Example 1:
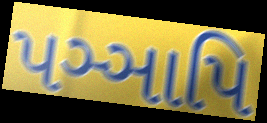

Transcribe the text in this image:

પઞ્ઞાપિ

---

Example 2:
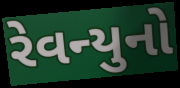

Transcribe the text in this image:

રેવન્યુનો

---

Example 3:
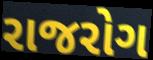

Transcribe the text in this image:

રાજરોગ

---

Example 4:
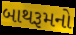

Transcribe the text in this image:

બાથરૂમનો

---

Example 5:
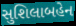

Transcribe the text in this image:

સુશિલાબહેન